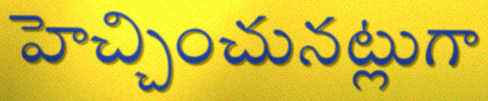
హెచ్చించునట్లుగా